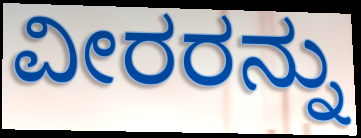
ವೀರರನ್ನು